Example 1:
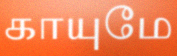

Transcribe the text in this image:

காயுமே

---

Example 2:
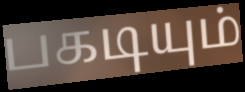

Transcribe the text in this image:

பகடியும்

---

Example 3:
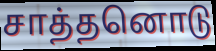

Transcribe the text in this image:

சாத்தனொடு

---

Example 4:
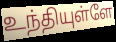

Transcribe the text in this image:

உந்தியுள்ளே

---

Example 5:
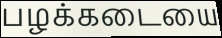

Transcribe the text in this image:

பழக்கடையை